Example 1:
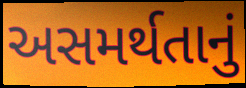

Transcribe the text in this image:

અસમર્થતાનું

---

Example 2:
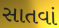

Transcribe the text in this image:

સાતવાં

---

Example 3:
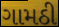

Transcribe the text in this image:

ગામઠી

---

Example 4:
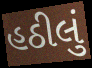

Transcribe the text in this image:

હઠીલું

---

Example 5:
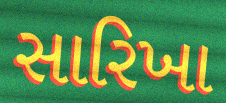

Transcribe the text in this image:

સારિખા